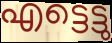
എട്ടെട്ടു